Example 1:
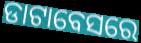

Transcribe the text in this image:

ଡାଟାବେସରେ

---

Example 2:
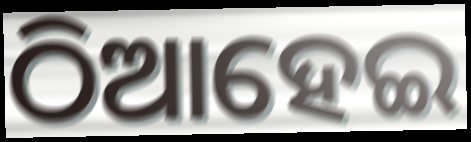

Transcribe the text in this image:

ଠିଆହେଇ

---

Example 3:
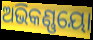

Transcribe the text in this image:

ଅଭିକଣ୍ଣୟୋ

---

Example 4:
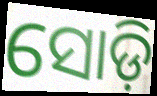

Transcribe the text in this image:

ସୋଡ଼ି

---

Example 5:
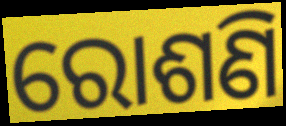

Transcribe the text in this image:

ରୋଶଣି